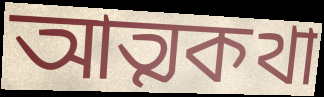
আত্মকথা